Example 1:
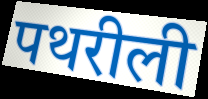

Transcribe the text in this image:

पथरीली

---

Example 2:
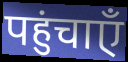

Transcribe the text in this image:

पहुंचाएँ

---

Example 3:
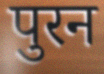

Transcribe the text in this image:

पुरन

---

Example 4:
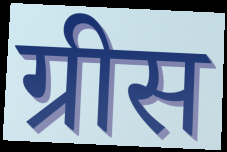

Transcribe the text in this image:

ग्रीस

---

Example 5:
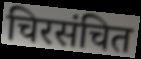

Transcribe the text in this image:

चिरसंचित